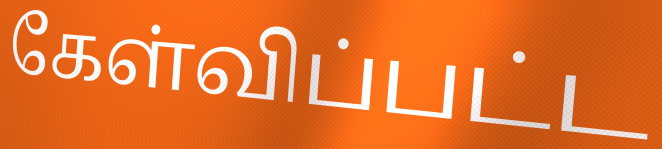
கேள்விப்பட்ட